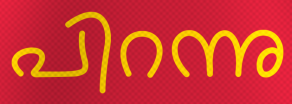
പിറന്നു